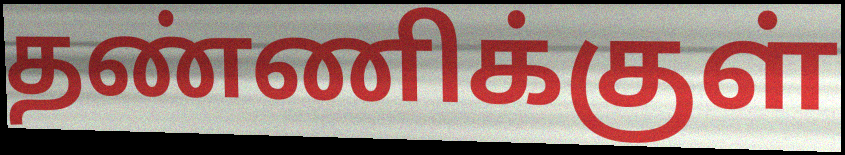
தண்ணிக்குள்